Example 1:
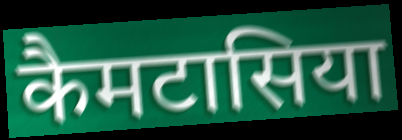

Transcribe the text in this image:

कैमटासिया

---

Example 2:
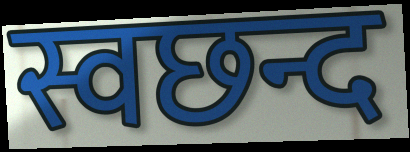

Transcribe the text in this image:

स्वछन्द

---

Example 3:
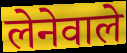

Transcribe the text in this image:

लेनेवाले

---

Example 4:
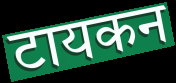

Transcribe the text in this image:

टायकन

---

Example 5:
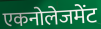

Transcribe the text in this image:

एकनोलेजमेंट